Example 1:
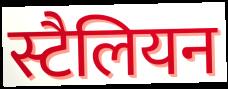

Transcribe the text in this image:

स्टैलियन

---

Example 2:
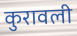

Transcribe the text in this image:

कुरावली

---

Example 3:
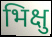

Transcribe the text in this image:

भिक्षु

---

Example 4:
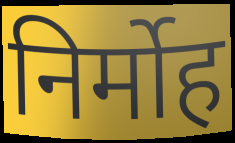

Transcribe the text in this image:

निर्मोह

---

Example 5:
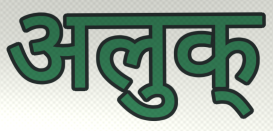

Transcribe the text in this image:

अलुक्